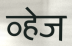
व्हेज